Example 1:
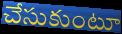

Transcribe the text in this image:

చేసుకుంటూ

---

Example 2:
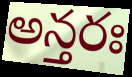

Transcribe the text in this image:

అన్తరః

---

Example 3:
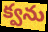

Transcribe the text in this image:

క్వను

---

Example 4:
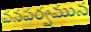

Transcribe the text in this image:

వనపర్వమున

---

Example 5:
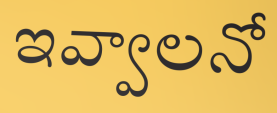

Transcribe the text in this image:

ఇవ్వాలనో